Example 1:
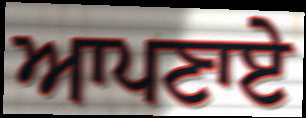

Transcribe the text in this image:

ਆਪਣਾਏ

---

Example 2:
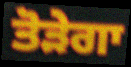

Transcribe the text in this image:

ਤੋੜੇਗਾ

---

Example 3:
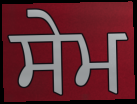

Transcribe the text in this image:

ਸੇਮ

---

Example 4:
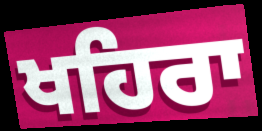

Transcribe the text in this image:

ਖਹਿਰਾ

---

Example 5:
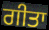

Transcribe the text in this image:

ਗੀਤਾ